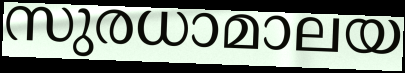
സുരധാമാലയ